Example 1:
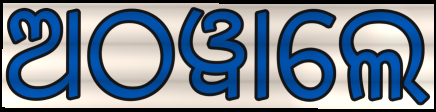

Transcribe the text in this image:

ଅଠୱାଲେ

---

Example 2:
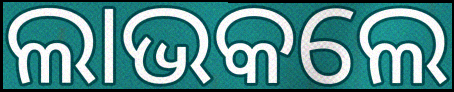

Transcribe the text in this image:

ଲାଭକଲେ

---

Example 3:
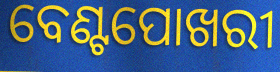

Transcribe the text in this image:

ବେଣ୍ଟପୋଖରୀ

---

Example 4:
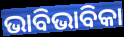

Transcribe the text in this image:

ଭାବିଭାବିକା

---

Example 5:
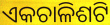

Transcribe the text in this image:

ଏକଚାଳିଶଟି